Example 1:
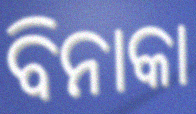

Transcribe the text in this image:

ବିନାକା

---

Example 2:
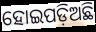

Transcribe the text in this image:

ହୋଇପଡ଼ିଅଛି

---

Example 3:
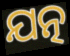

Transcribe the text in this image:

ଯତ୍ନ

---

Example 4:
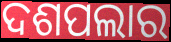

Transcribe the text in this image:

ଦଶପଲାର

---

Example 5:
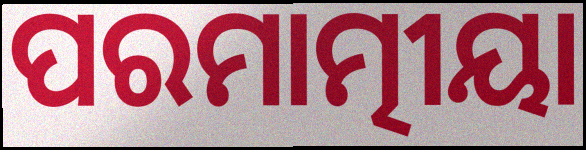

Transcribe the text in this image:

ପରମାତ୍ମୀୟା